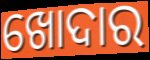
ଖୋଦାର